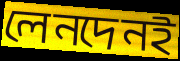
লেনদেনই